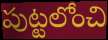
పుట్టలోంచి